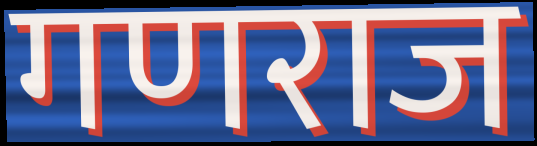
गणराज